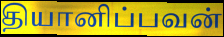
தியானிப்பவன்